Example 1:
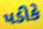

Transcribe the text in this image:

પડીકે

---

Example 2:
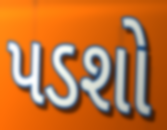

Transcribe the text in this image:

પડશો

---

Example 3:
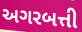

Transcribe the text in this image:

અગરબત્તી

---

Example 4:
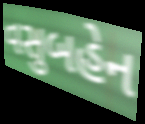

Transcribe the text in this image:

વસુબહેન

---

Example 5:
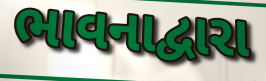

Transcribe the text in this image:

ભાવનાદ્વારા